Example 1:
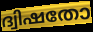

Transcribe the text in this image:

ദ്വിഷതോ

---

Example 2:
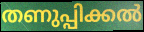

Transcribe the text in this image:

തണുപ്പിക്കൽ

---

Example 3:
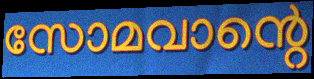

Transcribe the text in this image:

സോമവാന്റെ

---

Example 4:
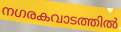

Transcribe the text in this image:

നഗരകവാടത്തിൽ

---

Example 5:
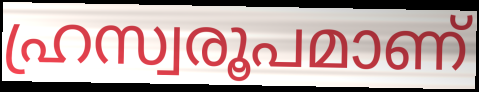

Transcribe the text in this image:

ഹ്രസ്വരൂപമാണ്